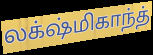
லக்‌ஷ்மிகாந்த்